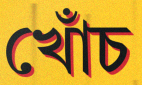
খোঁচ